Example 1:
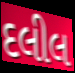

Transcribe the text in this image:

દલીલ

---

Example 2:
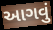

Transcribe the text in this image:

આગવું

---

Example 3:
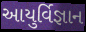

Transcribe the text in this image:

આયુર્વિજ્ઞાન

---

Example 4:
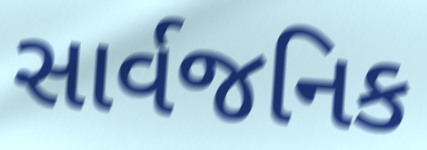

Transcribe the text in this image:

સાર્વજનિક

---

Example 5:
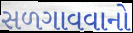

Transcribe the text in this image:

સળગાવવાનો